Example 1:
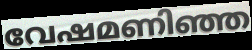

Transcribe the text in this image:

വേഷമണിഞ്ഞ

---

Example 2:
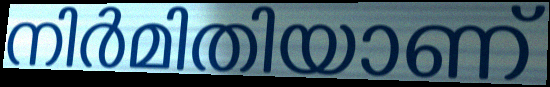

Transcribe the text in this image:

നിർമിതിയാണ്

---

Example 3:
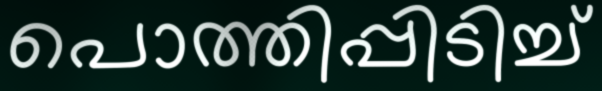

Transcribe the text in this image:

പൊത്തിപ്പിടിച്ച്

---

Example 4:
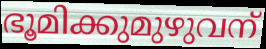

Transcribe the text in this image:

ഭൂമിക്കുമുഴുവന്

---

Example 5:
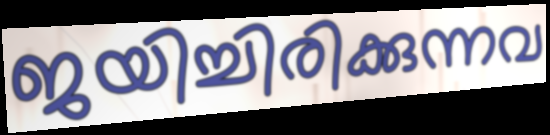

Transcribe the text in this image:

ജയിച്ചിരിക്കുന്നവ